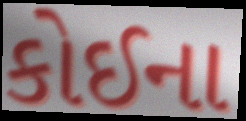
કોઈના